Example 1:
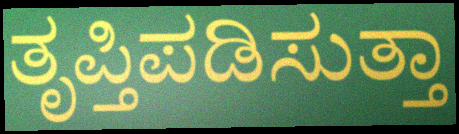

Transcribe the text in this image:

ತೃಪ್ತಿಪಡಿಸುತ್ತಾ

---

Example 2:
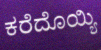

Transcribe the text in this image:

ಕರೆದೊಯ್ಯಿ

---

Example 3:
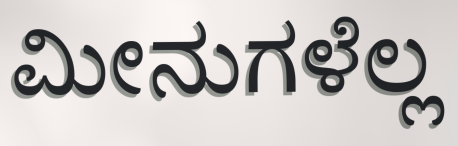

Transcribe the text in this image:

ಮೀನುಗಳೆಲ್ಲ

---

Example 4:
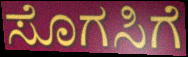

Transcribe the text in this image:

ಸೊಗಸಿಗೆ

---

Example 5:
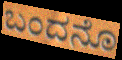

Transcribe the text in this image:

ಬಂದನೊ